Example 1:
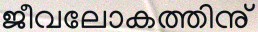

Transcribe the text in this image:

ജീവലോകത്തിനു്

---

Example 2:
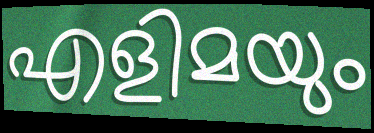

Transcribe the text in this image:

എളിമയും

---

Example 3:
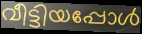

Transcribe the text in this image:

വീട്ടിയപ്പോൾ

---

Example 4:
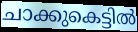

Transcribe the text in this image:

ചാക്കുകെട്ടിൽ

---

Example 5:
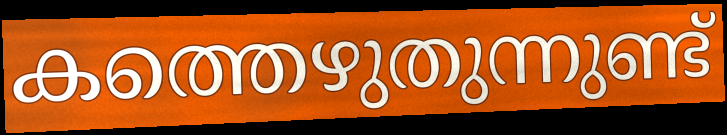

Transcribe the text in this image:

കത്തെഴുതുന്നുണ്ട്